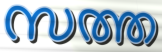
സത്ത